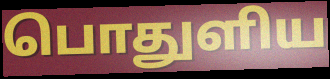
பொதுளிய